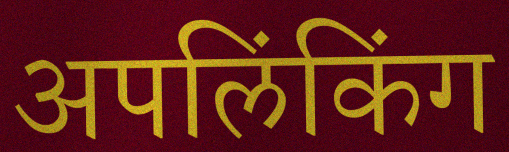
अपलिंकिंग